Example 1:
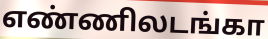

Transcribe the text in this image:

எண்ணிலடங்கா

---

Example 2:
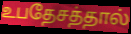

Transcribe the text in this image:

உபதேசத்தால்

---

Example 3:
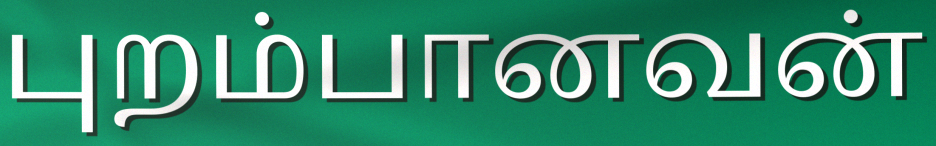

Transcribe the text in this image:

புறம்பானவன்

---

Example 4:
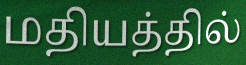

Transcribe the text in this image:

மதியத்தில்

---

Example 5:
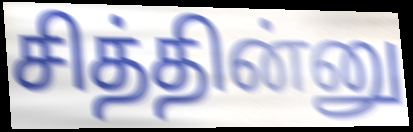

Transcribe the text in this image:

சித்தின்னு